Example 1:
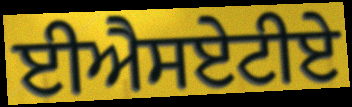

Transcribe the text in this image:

ਈਐਸਏਟੀਏ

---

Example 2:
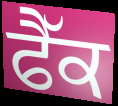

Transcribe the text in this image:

ਫੈੱਕ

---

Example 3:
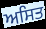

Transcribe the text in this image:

ਅਸਿਤ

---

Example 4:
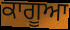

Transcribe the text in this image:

ਕਾਗੂਆ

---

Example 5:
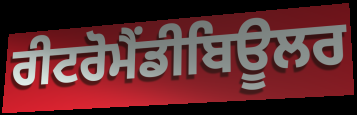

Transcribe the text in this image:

ਰੀਟਰੋਮੈਂਡੀਬਿਊਲਰ